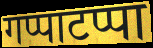
गप्पाटप्पा